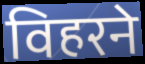
विहरने